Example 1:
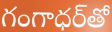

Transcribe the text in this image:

గంగాధర్‌తో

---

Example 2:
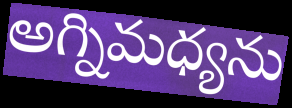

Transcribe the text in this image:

అగ్నిమధ్యను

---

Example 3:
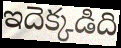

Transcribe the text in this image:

ఇదెక్కడిది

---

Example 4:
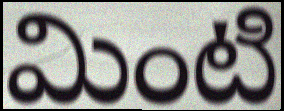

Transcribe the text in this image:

మింటి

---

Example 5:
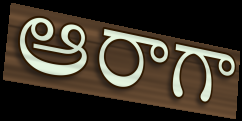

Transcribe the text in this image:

ఆరాగా